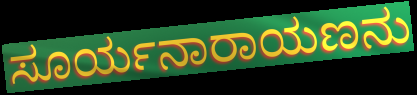
ಸೂರ್ಯನಾರಾಯಣನು